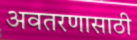
अवतरणासाठी